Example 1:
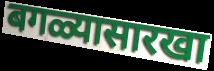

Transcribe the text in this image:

बगळ्यासारखा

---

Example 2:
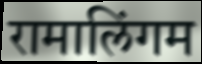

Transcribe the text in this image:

रामालिंगम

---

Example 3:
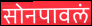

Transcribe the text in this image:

सोनपावलं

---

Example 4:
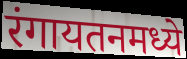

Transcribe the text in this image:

रंगायतनमध्ये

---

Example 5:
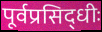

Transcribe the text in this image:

पूर्वप्रसिद्धीः